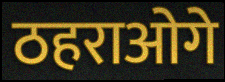
ठहराओगे